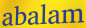
abalam